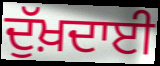
ਦੁੱਖ਼ਦਾਈ